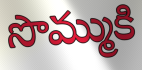
సొమ్ముకి